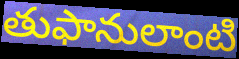
తుఫానులాంటి